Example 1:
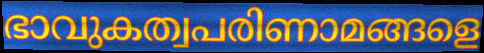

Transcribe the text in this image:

ഭാവുകത്വപരിണാമങ്ങളെ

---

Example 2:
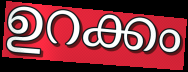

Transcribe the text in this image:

ഉറക്കം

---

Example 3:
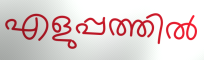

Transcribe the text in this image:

എളുപ്പത്തിൽ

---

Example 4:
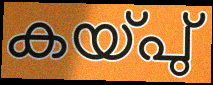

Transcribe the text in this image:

കയ്പു്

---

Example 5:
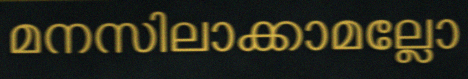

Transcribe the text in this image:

മനസിലാക്കാമല്ലോ